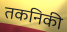
तकनिकी